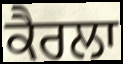
ਕੈਰਲਾ